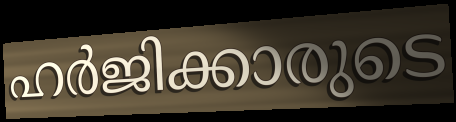
ഹർജിക്കാരുടെ